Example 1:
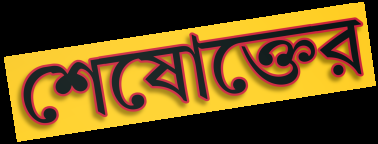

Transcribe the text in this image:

শেষোক্তের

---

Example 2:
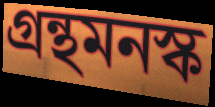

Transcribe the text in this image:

গ্রন্থমনস্ক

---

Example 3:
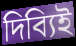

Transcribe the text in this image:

দিব্যিই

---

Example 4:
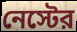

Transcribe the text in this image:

নেস্টের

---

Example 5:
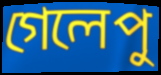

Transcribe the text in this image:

গেলেপু